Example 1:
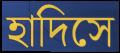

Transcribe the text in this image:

হাদিসে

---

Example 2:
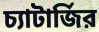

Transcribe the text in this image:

চ্যাটার্জির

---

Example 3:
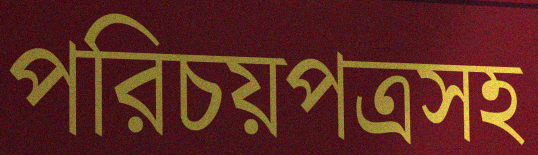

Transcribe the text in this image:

পরিচয়পত্রসহ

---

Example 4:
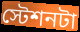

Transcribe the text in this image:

স্টেশনটা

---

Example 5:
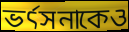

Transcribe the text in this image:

ভর্ৎসনাকেও